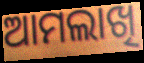
ଆମଲାଖି